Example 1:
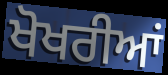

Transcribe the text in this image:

ਖੋਖਰੀਆਂ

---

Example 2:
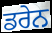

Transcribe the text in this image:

ਡਰੇਨ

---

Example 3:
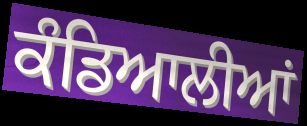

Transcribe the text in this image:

ਕੰਡਿਆਲੀਆਂ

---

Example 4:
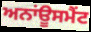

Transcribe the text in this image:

ਅਨਾਂਊਸਮੈਂਟ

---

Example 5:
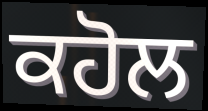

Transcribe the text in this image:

ਕਹੋਲ